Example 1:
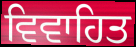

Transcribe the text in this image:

ਵਿਵਾਹਿਤ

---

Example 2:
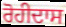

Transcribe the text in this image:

ਰੋਹੀਦਾਸ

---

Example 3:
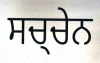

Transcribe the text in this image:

ਸਚ੍ਚੇਨ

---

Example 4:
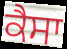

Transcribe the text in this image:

ਕੈਸਾ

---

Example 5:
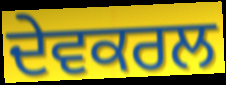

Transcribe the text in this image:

ਦੇਵਕਰਲ